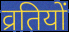
व्रतियों